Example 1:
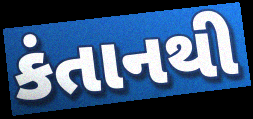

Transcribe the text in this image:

કંતાનથી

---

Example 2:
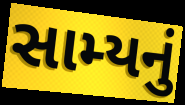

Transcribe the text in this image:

સામ્યનું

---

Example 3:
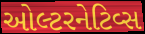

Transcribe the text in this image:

ઓલ્ટરનેટિવ્સ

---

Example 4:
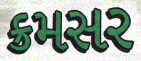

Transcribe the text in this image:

ક્રમસર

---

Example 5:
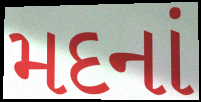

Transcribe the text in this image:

મદનાં